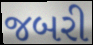
જબરી